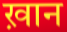
ख़ान